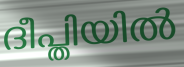
ദീപ്തിയിൽ